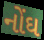
નોંઘ